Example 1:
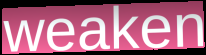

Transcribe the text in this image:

weaken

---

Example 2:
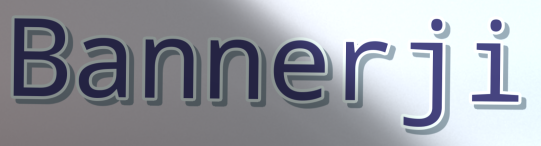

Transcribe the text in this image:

Bannerji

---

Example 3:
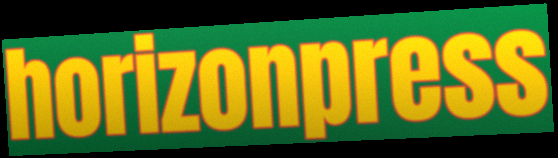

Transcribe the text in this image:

horizonpress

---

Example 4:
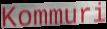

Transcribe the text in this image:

Kommuri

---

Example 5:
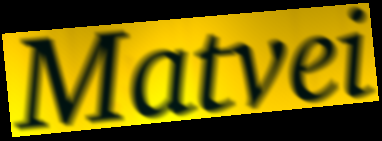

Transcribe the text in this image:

Matvei